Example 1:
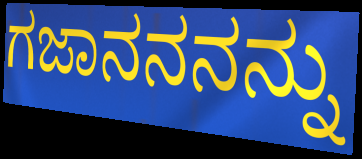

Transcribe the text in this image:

ಗಜಾನನನನ್ನು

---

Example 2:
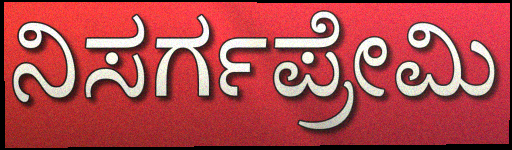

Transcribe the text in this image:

ನಿಸರ್ಗಪ್ರೇಮಿ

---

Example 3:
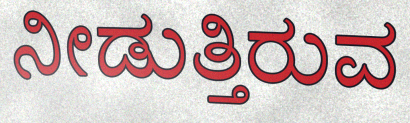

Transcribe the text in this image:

ನೀಡುತ್ತಿರುವ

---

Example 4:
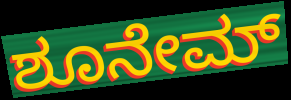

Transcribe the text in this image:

ಶೂನೇಮ್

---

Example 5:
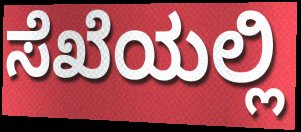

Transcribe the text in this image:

ಸೆಖೆಯಲ್ಲಿ